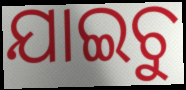
ଯାଇଚୁ